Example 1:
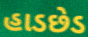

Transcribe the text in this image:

હાડછેડ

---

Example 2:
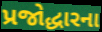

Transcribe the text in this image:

પ્રજોદ્ધારના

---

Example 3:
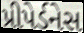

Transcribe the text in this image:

પ્રીપેર્ડનેસ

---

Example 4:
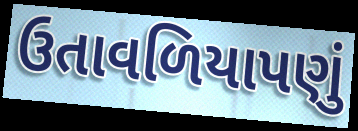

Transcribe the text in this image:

ઉતાવળિયાપણું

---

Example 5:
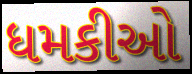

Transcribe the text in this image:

ધમકીઓ